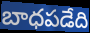
బాధపడేది